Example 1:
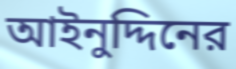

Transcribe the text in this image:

আইনুদ্দিনের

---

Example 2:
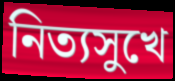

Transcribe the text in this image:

নিত্যসুখে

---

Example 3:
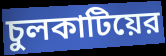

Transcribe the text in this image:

চুলকাটিয়ের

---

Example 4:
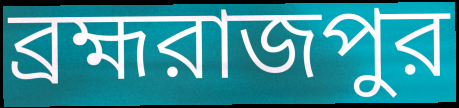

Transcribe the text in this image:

ব্রহ্মরাজপুর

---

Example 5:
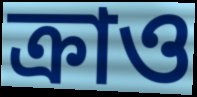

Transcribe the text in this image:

ক্রাও